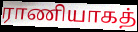
ராணியாகத்